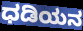
ಧಡಿಯನ